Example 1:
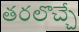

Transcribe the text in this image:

తరలొచ్చే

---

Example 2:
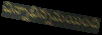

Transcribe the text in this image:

చిన్నాభిన్నమయింది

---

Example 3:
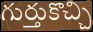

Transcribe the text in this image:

గుర్తుకొచ్చి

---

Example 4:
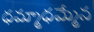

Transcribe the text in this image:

ధమ్మాధమ్మేన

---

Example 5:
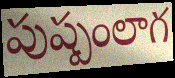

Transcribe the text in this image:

పుష్పంలాగ